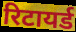
रिटायर्ड